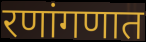
रणांगणात